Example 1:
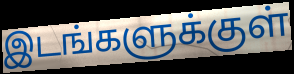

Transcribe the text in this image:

இடங்களுக்குள்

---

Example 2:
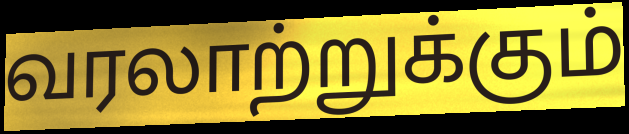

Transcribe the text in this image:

வரலாற்றுக்கும்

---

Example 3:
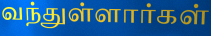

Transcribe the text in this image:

வந்துள்ளார்கள்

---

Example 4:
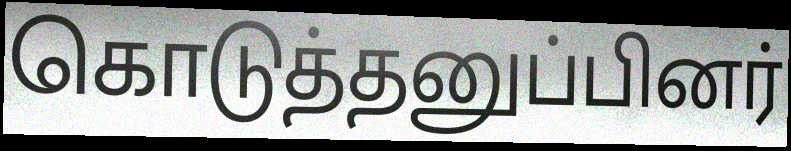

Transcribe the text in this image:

கொடுத்தனுப்பினர்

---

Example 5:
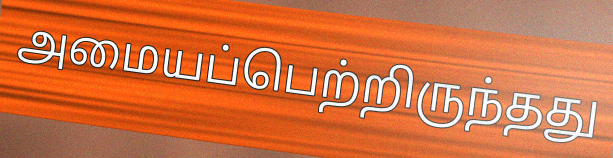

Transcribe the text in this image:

அமையப்பெற்றிருந்தது